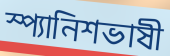
স্প্যানিশভাষী